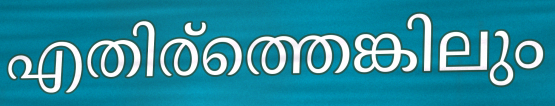
എതിര്ത്തെങ്കിലും